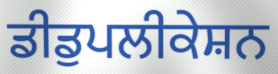
ਡੀਡੁਪਲੀਕੇਸ਼ਨ